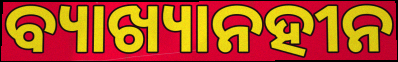
ବ୍ୟାଖ୍ୟାନହୀନ